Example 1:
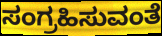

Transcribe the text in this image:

ಸಂಗ್ರಹಿಸುವಂತೆ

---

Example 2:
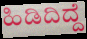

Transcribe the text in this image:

ಹಿಡಿದಿದ್ದೆ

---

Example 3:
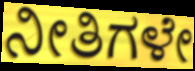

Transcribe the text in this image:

ನೀತಿಗಳೇ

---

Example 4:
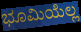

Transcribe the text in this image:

ಭೂಮಿಯೆಲ್ಲ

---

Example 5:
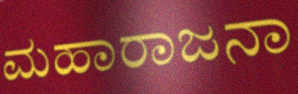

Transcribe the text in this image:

ಮಹಾರಾಜನಾ